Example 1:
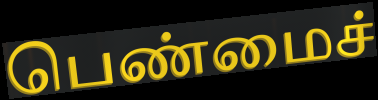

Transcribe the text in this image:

பெண்மைச்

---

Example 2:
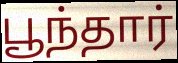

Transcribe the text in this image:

பூந்தார்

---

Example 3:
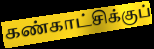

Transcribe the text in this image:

கண்காட்சிக்குப்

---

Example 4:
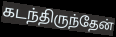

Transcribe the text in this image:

கடந்திருந்தேன்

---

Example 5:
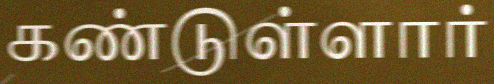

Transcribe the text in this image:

கண்டுள்ளார்